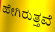
ಹೇಗಿರುತ್ತವೆ